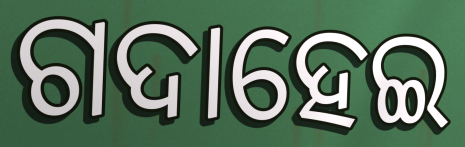
ଗଦାହେଇ